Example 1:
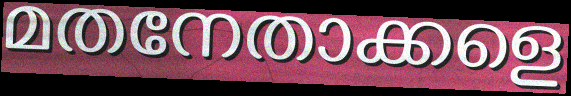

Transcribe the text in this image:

മതനേതാക്കളെ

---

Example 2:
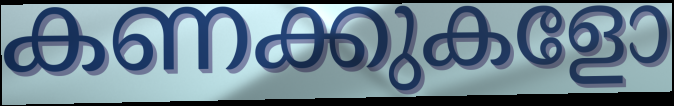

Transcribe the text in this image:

കണക്കുകളോ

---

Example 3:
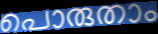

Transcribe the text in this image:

പൊരുതാം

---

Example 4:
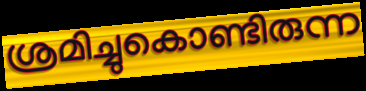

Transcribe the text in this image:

ശ്രമിച്ചുകൊണ്ടിരുന്ന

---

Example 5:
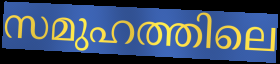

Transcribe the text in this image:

സമുഹത്തിലെ